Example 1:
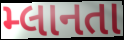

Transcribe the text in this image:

મ્લાનતા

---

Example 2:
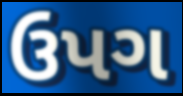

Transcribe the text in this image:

ઉપગ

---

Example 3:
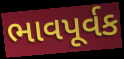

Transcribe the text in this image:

ભાવપૂર્વક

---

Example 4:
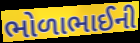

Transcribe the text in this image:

ભોળાભાઈની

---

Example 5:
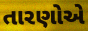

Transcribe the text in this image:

તારણોએ